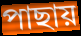
পাছায়